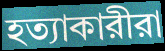
হত্যাকারীরা